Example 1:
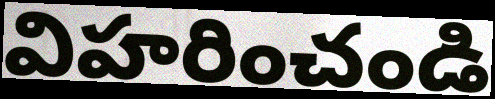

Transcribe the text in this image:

విహరించండి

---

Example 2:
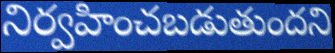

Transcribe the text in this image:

నిర్వహించబడుతుందని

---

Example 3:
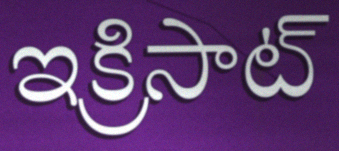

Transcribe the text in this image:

ఇక్రిసాట్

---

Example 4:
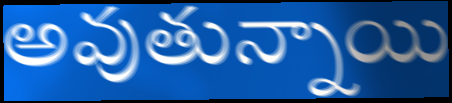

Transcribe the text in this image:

అవుతున్నాయి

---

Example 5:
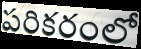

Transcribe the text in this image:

పరికరంలో